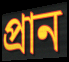
প্ৰান